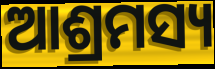
ଆଶ୍ରମସ୍ୟ